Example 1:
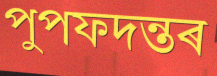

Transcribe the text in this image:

পুপফদন্তৰ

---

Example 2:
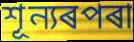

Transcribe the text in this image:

শূন্যৰপৰা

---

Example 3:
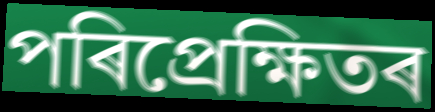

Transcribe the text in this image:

পৰিপ্ৰেক্ষিতৰ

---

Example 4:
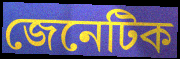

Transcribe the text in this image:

জেনেটিক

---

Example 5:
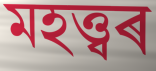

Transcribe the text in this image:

মহত্ত্বৰ